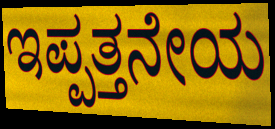
ಇಪ್ಪತ್ತನೇಯ